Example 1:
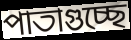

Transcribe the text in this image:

পাতাগুচ্ছে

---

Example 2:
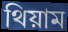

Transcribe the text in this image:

থিয়াম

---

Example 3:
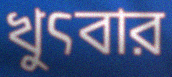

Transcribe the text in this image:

খুৎবার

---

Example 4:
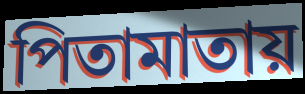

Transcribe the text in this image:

পিতামাতায়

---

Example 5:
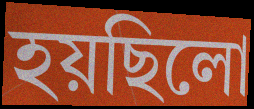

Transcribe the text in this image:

হয়ছিলো